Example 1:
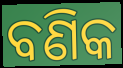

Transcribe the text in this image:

ବଣିକ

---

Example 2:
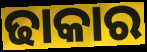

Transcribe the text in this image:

ଢାକାର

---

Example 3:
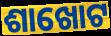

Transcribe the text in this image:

ଶାଖୋଟ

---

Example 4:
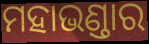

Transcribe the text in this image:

ମହାଭଣ୍ଡାର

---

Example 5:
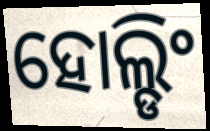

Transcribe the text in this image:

ହୋଲ୍ଡିଂ